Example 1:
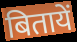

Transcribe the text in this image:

बितायें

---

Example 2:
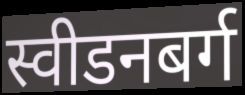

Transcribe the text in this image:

स्वीडनबर्ग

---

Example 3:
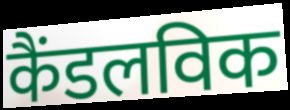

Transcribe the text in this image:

कैंडलविक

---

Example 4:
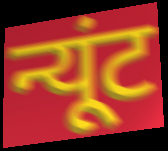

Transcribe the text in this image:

न्यूंट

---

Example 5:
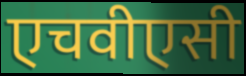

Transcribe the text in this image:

एचवीएसी